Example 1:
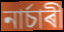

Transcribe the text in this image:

নাৰ্চাৰী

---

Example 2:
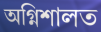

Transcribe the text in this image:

অগ্নিশালত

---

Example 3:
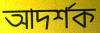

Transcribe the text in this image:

আদৰ্শক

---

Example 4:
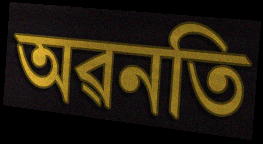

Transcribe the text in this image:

অৱনতি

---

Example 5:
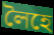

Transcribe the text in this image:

লৈহে